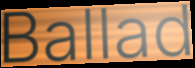
Ballad